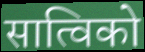
सात्विको